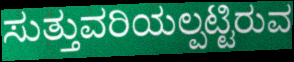
ಸುತ್ತುವರಿಯಲ್ಪಟ್ಟಿರುವ